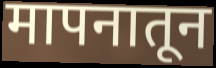
मापनातून